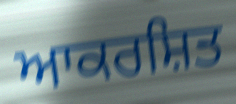
ਆਕਰਸ਼ਿਤ